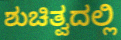
ಶುಚಿತ್ವದಲ್ಲಿ